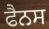
ਫੈਨਸ